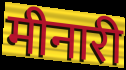
मीनारी